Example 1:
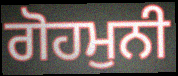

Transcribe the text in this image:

ਗੋਹਮੁਨੀ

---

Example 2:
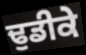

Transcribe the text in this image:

ਢੁਡੀਕੇ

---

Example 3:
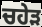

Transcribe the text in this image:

ਚਹੇੜ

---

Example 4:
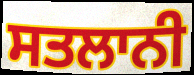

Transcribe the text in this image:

ਸਤਲਾਨੀ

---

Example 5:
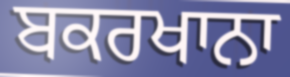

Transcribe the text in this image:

ਬਕਰਖਾਨਾ